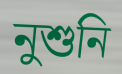
নুশুনি